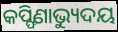
କପ୍ଫିଣାଭ୍ୟୁଦୟ